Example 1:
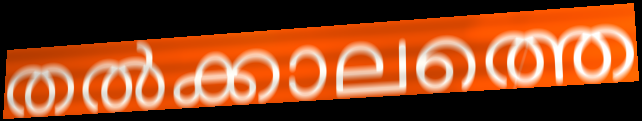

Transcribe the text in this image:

തൽക്കാലത്തെ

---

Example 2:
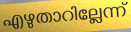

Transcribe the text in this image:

എഴുതാറില്ലേന്ന്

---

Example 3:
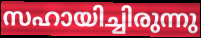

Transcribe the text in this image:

സഹായിച്ചിരുന്നു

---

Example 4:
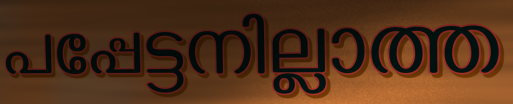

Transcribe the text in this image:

പപ്പേട്ടനില്ലാത്ത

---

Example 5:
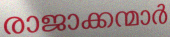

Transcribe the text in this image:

രാജാക്കന്മാർ